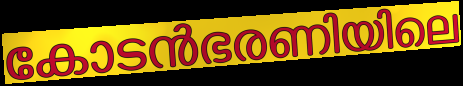
കോടൻഭരണിയിലെ